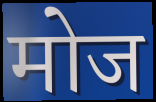
मोज